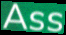
Ass